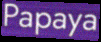
Papaya